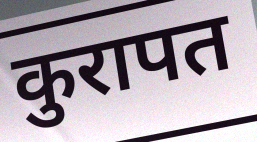
कुरापत